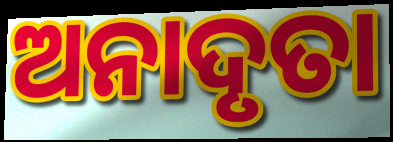
ଅନାଦୃତା